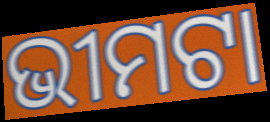
ଭୀମଟା